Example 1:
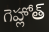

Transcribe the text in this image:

గెహ్లోత్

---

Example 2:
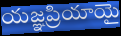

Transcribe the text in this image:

యజ్ఞప్రియాయై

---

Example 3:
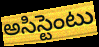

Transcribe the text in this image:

అసిస్టెంటు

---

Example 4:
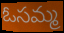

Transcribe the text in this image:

ఓసమ్మ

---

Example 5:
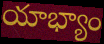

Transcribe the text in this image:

యాభ్యాం